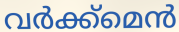
വർക്ക്മെൻ